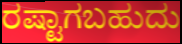
ರಷ್ಟಾಗಬಹುದು